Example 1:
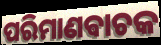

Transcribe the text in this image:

ପରିମାଣଵାଚକ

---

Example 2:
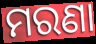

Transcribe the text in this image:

ମରଣା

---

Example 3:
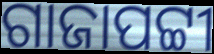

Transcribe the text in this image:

ଗାଜାପଟ୍ଟୀ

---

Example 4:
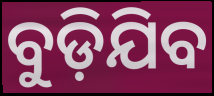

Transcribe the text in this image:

ବୁଡ଼ିଯିବ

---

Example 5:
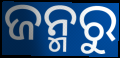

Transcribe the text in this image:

ଜନ୍ମରୁ